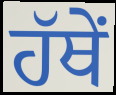
ਹੱਥੇਂ